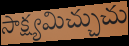
సాక్ష్యమిచ్చుచు